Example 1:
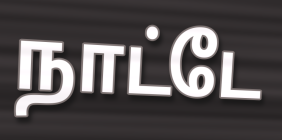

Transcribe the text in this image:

நாட்டே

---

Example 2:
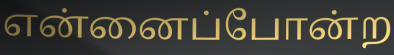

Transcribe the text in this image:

என்னைப்போன்ற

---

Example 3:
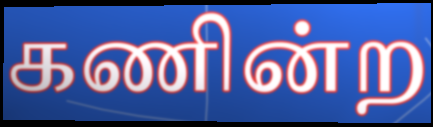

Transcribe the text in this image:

கணின்ற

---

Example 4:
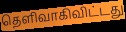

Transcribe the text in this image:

தெளிவாகிவிட்டது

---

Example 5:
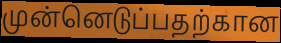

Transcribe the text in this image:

முன்னெடுப்பதற்கான